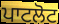
ਪਾਟਲੋਟ